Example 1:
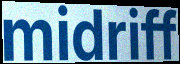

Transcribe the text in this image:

midriff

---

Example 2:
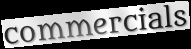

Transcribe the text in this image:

commercials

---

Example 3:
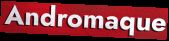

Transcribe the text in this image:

Andromaque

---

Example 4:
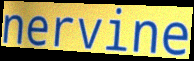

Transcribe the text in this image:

nervine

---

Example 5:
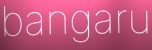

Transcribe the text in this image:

bangaru